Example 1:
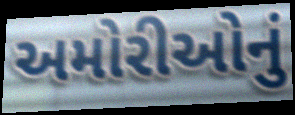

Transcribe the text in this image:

અમોરીઓનું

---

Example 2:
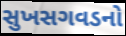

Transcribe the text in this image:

સુખસગવડનો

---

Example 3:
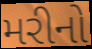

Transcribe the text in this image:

મરીનો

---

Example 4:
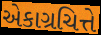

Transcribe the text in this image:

એકાગ્રચિત્તે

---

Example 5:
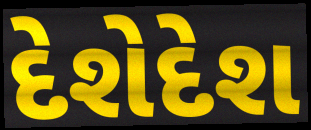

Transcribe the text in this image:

દેશેદેશ